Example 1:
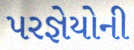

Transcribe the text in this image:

પરજ્ઞેયોની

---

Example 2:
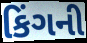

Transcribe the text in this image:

કિંગની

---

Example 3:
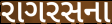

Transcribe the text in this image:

રાગરસના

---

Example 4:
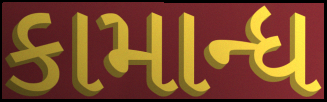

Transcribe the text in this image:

કામાન્ધ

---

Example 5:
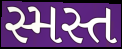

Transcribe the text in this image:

સ્મસ્ત